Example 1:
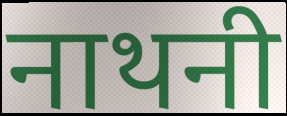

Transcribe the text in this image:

नाथनी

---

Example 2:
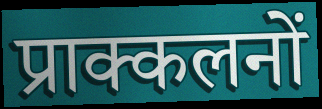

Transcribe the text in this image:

प्राक्कलनों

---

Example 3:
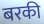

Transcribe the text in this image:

बरकी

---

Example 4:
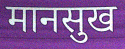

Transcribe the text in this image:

मानसुख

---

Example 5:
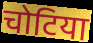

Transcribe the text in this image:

चोटिया